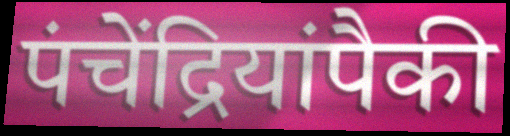
पंचेंद्रियांपैकी